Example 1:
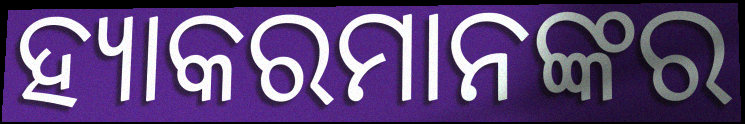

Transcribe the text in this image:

ହ୍ୟାକରମାନଙ୍କର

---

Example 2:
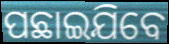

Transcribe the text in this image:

ପଛାଇଯିବେ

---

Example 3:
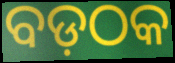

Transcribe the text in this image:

ବଡ଼ଠକ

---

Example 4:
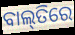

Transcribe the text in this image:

ବାଲ୍‌ତିରେ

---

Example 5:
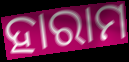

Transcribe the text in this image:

ହାରାମ